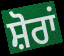
ਸ਼ੋਰਾਂ